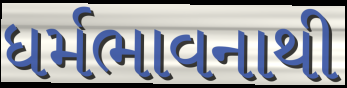
ધર્મભાવનાથી